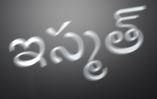
ఇస్మత్